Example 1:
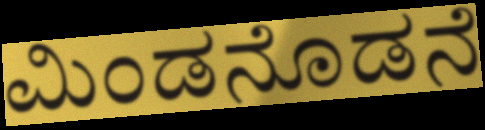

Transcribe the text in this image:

ಮಿಂಡನೊಡನೆ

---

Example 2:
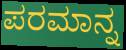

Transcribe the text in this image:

ಪರಮಾನ್ನ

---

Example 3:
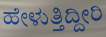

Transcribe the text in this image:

ಹೇಳುತ್ತಿದ್ದೀರಿ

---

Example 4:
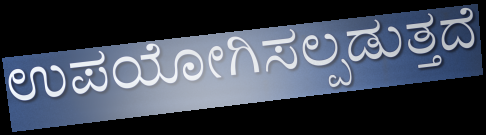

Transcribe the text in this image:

ಉಪಯೋಗಿಸಲ್ಪಡುತ್ತದೆ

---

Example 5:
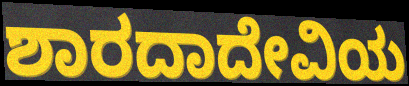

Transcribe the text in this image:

ಶಾರದಾದೇವಿಯ